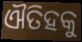
ଐତିହକୁ